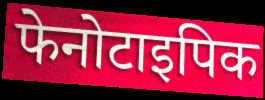
फेनोटाइपिक